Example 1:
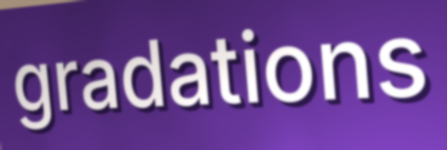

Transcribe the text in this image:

gradations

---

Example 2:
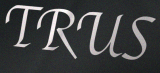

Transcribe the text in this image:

TRUS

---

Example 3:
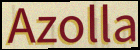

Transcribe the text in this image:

Azolla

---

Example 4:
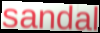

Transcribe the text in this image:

sandal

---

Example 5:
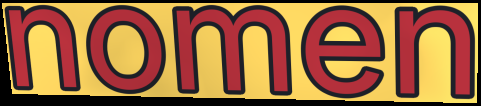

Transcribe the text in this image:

nomen